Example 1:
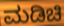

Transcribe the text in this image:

ಮಡಿಚಿ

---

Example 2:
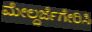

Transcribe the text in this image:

ಮೇಲ್ದರ್ಜೆಗೇರಿಸಿ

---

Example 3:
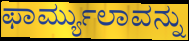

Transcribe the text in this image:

ಫಾರ್ಮ್ಯುಲಾವನ್ನು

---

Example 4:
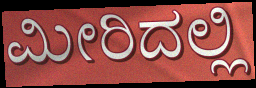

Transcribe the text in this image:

ಮೀರಿದಲ್ಲಿ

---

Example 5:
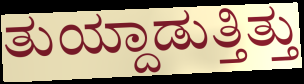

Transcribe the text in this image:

ತುಯ್ದಾಡುತ್ತಿತ್ತು